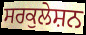
ਸਰਕੁਲੇਸ਼ਨ